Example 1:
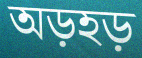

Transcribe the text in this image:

অড়হড়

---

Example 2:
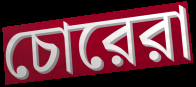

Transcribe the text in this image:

চোরেরা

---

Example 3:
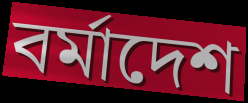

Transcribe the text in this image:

বর্মাদেশ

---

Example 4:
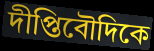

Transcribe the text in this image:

দীপ্তিবৌদিকে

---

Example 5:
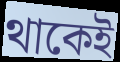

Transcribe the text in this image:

থাকেই